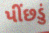
પીંછડું